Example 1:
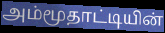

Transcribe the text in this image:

அம்மூதாட்டியின்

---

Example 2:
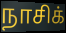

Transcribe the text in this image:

நாசிக்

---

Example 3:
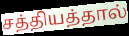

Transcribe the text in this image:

சத்தியத்தால்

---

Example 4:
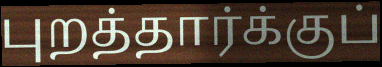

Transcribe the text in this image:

புறத்தார்க்குப்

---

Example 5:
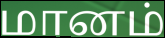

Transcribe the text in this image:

மானம்